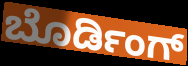
ಬೊರ್ಡಿಂಗ್